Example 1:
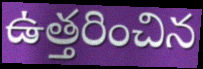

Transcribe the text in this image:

ఉత్తరించిన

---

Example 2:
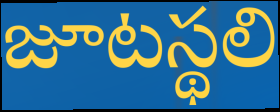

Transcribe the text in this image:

జూటస్థలి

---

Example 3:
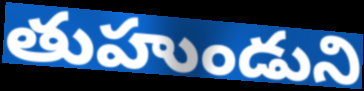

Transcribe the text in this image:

తుహుండుని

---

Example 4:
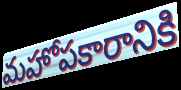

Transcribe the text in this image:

మహోపకారానికి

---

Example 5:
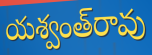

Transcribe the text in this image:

యశ్వంత్‌రావు